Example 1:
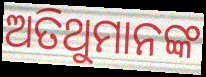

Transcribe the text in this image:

ଅତିଥୁମାନଙ୍କ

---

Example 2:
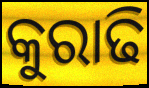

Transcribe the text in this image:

କୁରାଢି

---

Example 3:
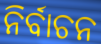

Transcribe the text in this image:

ନିର୍ବାଚନ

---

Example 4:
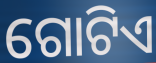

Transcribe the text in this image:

ଗୋଟିଏ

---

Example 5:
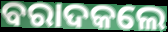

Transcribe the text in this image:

ବରାଦକଲେ